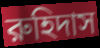
রুহিদাস